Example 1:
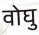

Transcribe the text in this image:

वोघु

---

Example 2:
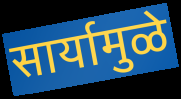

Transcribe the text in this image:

सार्यामुळे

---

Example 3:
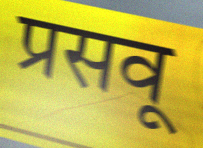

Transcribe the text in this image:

प्रसवू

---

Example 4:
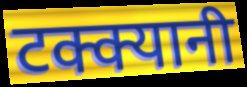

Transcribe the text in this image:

टक्क्यानी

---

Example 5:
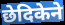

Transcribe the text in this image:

छेदिकेने